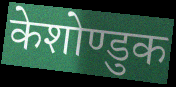
केशोण्डुक